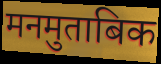
मनमुताबिक